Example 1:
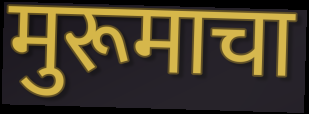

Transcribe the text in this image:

मुरूमाचा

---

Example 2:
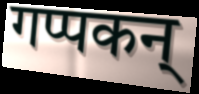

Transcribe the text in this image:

गप्पकन्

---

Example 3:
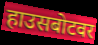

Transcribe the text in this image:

हाउसबोटवर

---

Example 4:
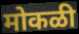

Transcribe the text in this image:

मोकळी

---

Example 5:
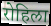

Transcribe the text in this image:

रोहिला